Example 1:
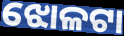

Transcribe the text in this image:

ଝୋଳଟା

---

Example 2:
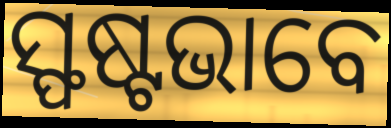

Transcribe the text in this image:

ସ୍ଫଷ୍ଟଭାବେ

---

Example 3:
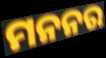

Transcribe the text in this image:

ମନନର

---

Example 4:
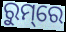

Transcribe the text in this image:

ରୁମ୍‌ରେ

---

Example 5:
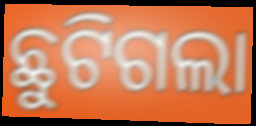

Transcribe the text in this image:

ଛୁଟିଗଲା